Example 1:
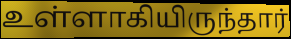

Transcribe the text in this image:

உள்ளாகியிருந்தார்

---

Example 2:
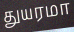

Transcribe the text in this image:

துயரமா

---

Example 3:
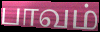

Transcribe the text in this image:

பாவம்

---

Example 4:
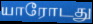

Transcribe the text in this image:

யாரோடது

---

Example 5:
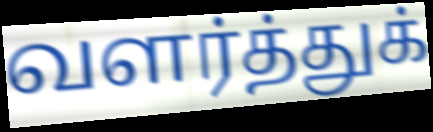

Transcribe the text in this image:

வளர்த்துக்